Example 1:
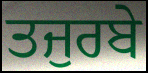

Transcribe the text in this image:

ਤਜੁਰਬੇ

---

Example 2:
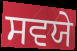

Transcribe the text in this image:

ਸਵਯੇ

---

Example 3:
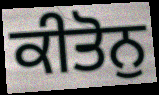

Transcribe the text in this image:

ਕੀਤੋਨੁ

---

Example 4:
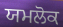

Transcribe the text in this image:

ਯਮਲੋਕ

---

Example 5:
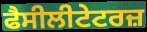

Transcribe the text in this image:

ਫੈਸੀਲੀਟੇਟਰਜ਼